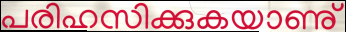
പരിഹസിക്കുകയാണു്